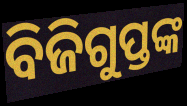
ବିଜିଗୁପ୍ତଙ୍କ